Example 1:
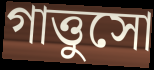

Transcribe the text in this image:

গাত্তুসো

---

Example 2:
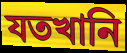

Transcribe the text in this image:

যতখানি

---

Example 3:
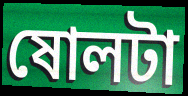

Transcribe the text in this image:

ষোলটা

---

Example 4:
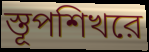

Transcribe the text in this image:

স্তূপশিখরে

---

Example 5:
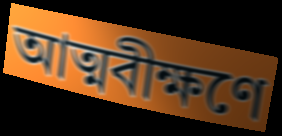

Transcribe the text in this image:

আত্মবীক্ষণে